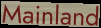
Mainland